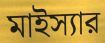
মাইস্যার